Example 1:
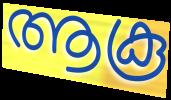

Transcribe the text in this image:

ആകൂ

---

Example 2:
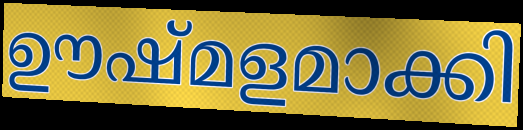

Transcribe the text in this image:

ഊഷ്മളമാക്കി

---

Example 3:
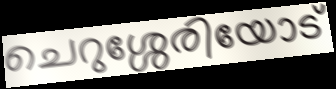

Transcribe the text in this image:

ചെറുശ്ശേരിയോട്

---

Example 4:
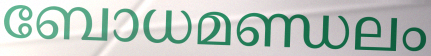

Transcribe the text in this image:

ബോധമണ്ഡലം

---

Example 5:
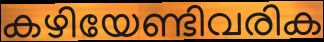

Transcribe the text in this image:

കഴിയേണ്ടിവരിക